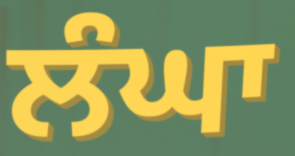
ਲੰਘਾ